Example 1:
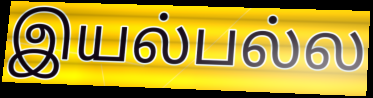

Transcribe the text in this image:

இயல்பல்ல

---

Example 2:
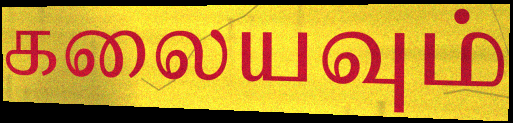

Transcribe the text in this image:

கலையவும்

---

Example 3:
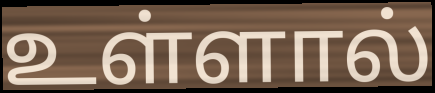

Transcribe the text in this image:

உள்ளால்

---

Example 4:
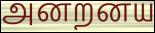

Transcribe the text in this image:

அனறனய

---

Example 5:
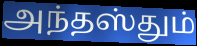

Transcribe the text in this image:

அந்தஸ்தும்